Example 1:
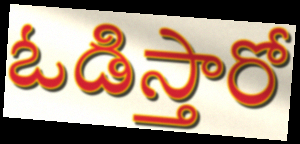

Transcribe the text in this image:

ఓడిస్తారో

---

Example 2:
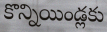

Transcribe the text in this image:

కొన్నియిండ్లకు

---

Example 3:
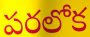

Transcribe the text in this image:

పరలోక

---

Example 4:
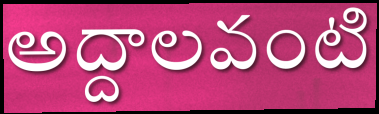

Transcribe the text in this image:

అద్దాలవంటి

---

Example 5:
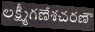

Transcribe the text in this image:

లక్ష్మీగణేశచరణౌ